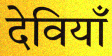
देवियाँ